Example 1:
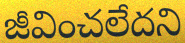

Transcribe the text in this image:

జీవించలేదని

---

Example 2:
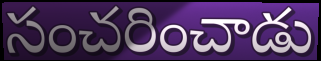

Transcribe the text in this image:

సంచరించాడు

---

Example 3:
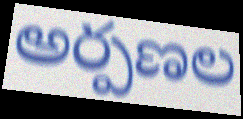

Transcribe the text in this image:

అర్పణల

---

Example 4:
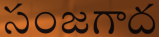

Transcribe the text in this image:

సంజగాద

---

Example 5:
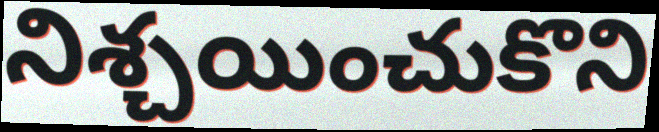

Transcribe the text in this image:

నిశ్చయించుకొని